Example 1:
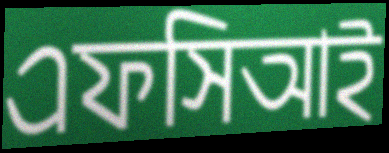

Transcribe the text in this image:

এফসিআই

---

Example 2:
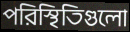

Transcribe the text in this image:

পরিস্থিতিগুলো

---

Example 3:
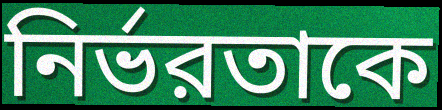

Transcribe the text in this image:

নির্ভরতাকে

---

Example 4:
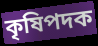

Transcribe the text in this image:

কৃষিপদক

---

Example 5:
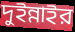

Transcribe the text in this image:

দুইন্নাইর